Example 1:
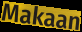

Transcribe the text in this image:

Makaan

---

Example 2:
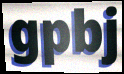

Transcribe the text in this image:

gpbj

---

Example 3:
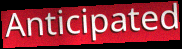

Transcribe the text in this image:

Anticipated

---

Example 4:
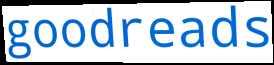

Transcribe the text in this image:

goodreads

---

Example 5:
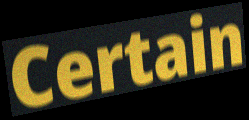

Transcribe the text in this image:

Certain